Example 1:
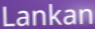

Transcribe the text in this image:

Lankan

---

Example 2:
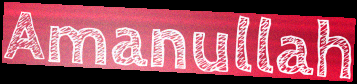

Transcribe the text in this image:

Amanullah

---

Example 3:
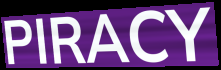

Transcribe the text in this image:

PIRACY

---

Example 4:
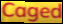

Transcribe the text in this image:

Caged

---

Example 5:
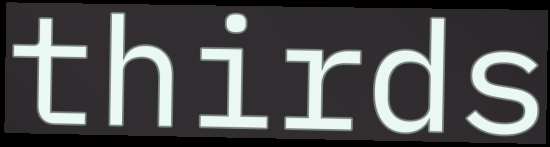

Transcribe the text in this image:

thirds